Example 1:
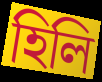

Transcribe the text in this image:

হিলি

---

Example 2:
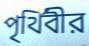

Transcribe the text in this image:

পৃর্থিবীর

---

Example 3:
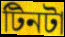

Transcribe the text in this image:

টিনটা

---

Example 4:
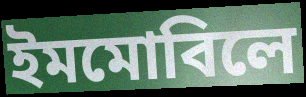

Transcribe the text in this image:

ইমমোবিলে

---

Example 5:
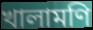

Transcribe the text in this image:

খালামণি